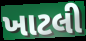
ખાટલી